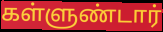
கள்ளுண்டார்